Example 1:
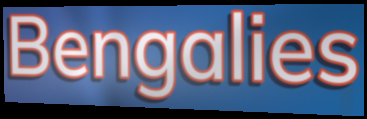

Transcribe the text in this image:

Bengalies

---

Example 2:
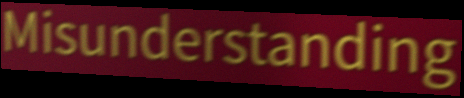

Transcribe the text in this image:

Misunderstanding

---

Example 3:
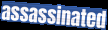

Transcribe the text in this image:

assassinated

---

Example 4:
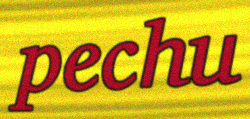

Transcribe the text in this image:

pechu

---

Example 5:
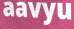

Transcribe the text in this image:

aavyu